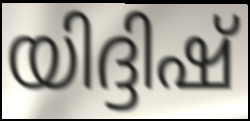
യിദ്ദിഷ്